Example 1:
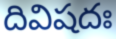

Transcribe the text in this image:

దివిషదః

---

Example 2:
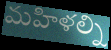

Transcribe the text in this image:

మహిళల్ని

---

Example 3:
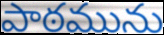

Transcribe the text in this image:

పాఠమును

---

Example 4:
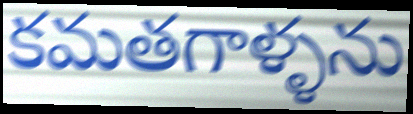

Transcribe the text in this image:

కమతగాళ్ళను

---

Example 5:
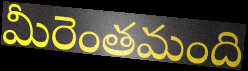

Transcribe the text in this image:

మీరెంతమంది